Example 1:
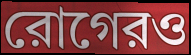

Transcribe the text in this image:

রোগেরও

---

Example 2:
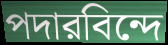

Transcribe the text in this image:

পদারবিন্দে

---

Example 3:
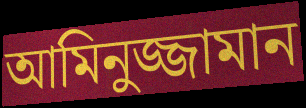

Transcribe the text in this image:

আমিনুজ্জামান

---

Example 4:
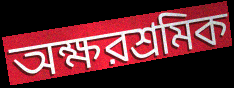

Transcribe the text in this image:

অক্ষরশ্রমিক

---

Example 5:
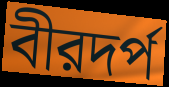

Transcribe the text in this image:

বীরদর্প